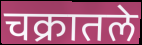
चक्रातले